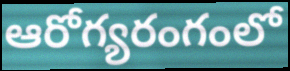
ఆరోగ్యరంగంలో